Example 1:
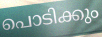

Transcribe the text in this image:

പൊടിക്കും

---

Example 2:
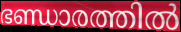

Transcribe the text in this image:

ഭണ്ഡാരത്തിൽ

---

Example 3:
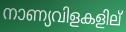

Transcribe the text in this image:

നാണ്യവിളകളില്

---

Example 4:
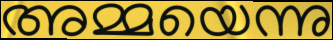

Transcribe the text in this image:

അമ്മയെന്നു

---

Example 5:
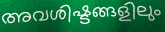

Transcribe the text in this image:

അവശിഷ്ടങ്ങളിലും